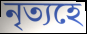
নৃত্যহে